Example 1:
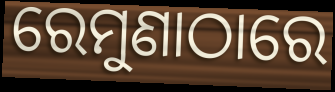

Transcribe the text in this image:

ରେମୁଣାଠାରେ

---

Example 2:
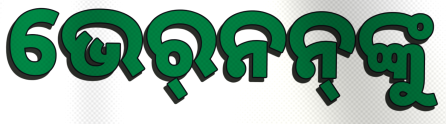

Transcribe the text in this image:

ଭେର୍‍ନନ୍‌ଙ୍କୁ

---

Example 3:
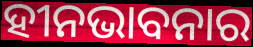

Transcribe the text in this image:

ହୀନଭାବନାର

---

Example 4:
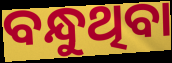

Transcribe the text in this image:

ବନ୍ଧୁଥିବା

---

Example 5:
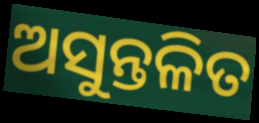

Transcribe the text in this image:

ଅସୁନ୍ତଳିତ